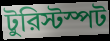
টুরিস্টস্পট